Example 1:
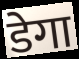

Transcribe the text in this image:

डेगा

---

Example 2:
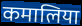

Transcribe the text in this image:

कमालिया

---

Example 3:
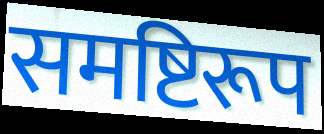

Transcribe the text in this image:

समष्टिरूप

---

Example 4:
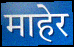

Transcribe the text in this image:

माहेर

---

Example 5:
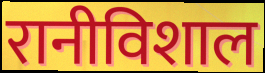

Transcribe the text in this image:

रानीविशाल